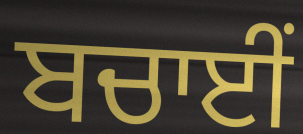
ਬਚਾਈਂ